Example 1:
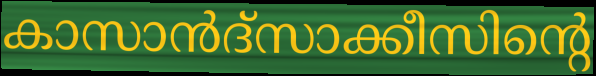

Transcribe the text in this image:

കാസാൻദ്സാക്കീസിന്റെ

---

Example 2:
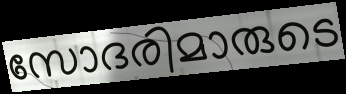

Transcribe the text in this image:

സോദരിമാരുടെ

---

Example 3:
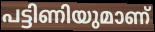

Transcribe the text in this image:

പട്ടിണിയുമാണ്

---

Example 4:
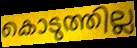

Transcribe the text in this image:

കൊടുത്തില്ല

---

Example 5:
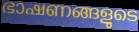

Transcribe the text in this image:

ഭാഷണങ്ങളുടെ